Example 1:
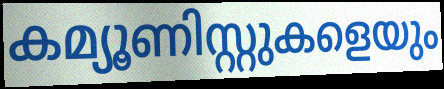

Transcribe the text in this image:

കമ്യൂണിസ്റ്റുകളെയും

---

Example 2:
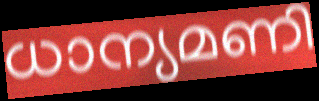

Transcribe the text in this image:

ധാന്യമണി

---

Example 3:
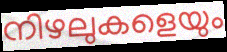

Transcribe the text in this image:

നിഴലുകളെയും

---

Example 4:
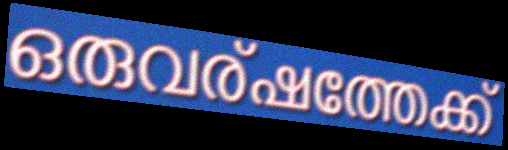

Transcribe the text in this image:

ഒരുവര്ഷത്തേക്ക്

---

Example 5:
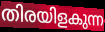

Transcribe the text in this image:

തിരയിളകുന്ന